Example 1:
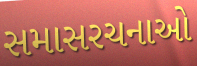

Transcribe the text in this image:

સમાસરચનાઓ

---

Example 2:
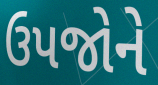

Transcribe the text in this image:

ઉપજોને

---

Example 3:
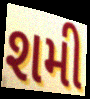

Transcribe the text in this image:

શમી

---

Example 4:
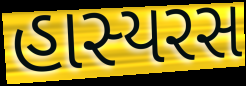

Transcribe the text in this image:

હાસ્યરસ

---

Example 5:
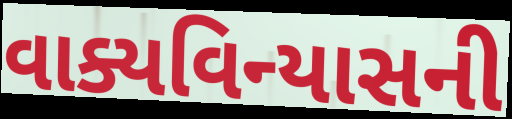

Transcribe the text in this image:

વાક્યવિન્યાસની